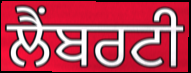
ਲੈਂਬਰਟੀ